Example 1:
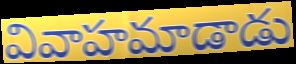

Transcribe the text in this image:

వివాహమాడాడు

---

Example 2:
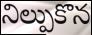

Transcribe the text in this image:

నిల్పుకొన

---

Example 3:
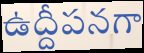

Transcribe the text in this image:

ఉద్దీపనగా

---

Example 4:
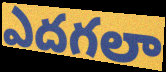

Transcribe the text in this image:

ఎదగలా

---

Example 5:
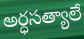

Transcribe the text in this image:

అర్ధసత్యాలే